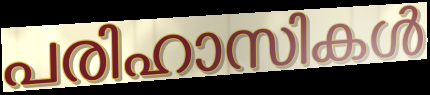
പരിഹാസികൾ